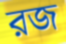
রজ